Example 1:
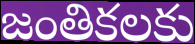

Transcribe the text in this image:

జంతికలకు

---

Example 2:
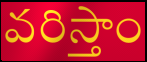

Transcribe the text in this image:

వరిస్తాం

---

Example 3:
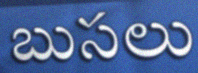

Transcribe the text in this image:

బుసలు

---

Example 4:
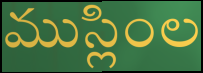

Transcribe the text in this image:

ముస్లింల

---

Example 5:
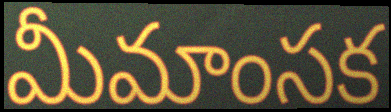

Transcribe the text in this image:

మీమాంసక